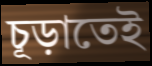
চূড়াতেই